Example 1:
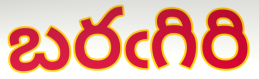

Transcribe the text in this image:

బరఁగిరి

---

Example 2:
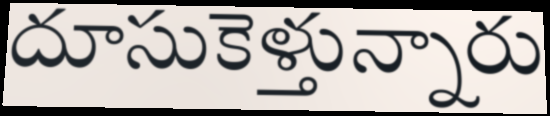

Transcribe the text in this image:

దూసుకెళ్తున్నారు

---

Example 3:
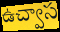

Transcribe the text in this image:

ఉచ్వాస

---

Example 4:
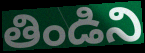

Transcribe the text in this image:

తిండిని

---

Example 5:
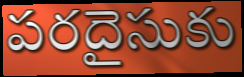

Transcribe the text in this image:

పరదైసుకు